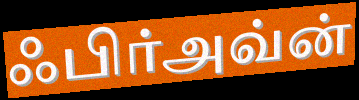
ஃபிர்அவ்ன்